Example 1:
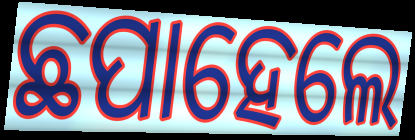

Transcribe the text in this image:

ଛପାହେଲେ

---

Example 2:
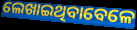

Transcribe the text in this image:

ଲେଖାଇଥିବାବେଳେ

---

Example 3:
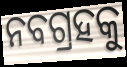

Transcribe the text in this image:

ନବଗ୍ରହକୁ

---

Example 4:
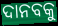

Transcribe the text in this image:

ଦାନବକୁ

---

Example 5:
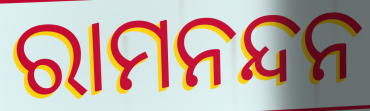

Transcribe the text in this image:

ରାମନନ୍ଦନ